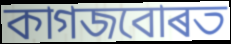
কাগজবোৰত